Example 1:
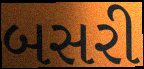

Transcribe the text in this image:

બસરી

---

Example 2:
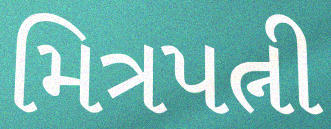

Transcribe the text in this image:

મિત્રપત્ની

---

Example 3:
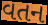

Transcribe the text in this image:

વતન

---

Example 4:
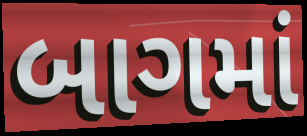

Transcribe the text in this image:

બાગમાં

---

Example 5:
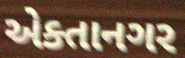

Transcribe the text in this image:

એક્તાનગર